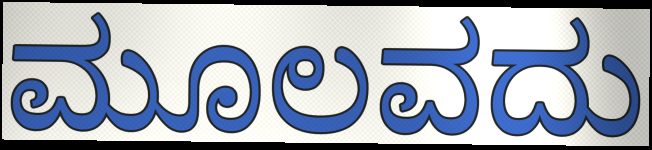
ಮೂಲವದು